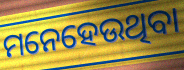
ମନେହେଉଥିବା